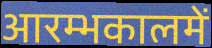
आरम्भकालमें